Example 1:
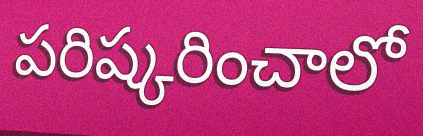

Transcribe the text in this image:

పరిష్కరించాలో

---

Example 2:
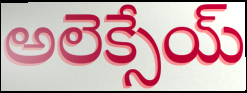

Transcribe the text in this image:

అలెక్సేయ్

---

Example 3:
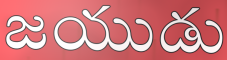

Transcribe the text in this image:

జయుడు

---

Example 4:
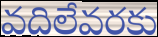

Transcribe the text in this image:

వదిలేవరకు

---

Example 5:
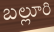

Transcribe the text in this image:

బల్లూరి